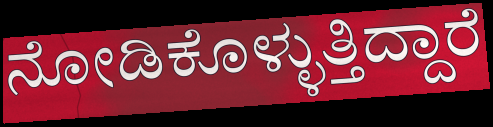
ನೋಡಿಕೊಳ್ಳುತ್ತಿದ್ದಾರೆ